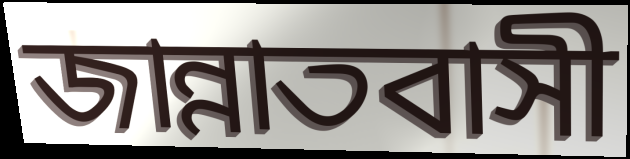
জান্নাতবাসী